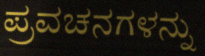
ಪ್ರವಚನಗಳನ್ನು